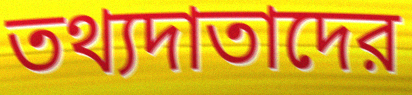
তথ্যদাতাদের